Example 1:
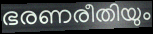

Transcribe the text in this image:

ഭരണരീതിയും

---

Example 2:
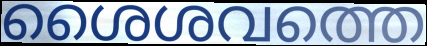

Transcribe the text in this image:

ശൈശവത്തെ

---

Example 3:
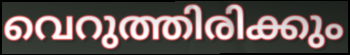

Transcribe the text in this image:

വെറുത്തിരിക്കും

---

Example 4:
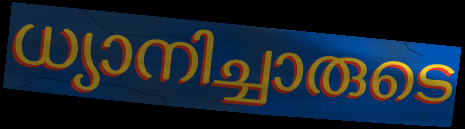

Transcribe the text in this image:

ധ്യാനിച്ചാരുടെ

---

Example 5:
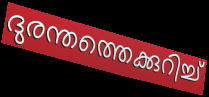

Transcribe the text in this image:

ദുരന്തത്തെക്കുറിച്ച്